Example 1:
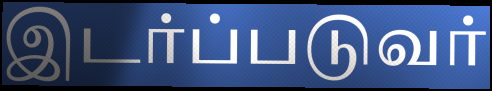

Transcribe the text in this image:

இடர்ப்படுவர்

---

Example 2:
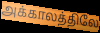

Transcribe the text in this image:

அக்காலத்திலே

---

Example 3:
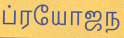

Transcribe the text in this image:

ப்ரயோஜந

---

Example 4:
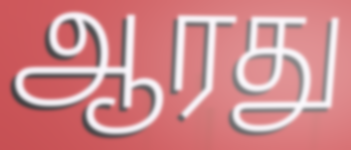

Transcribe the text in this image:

ஆரது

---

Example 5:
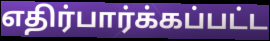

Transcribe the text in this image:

எதிர்பார்க்கப்பட்ட